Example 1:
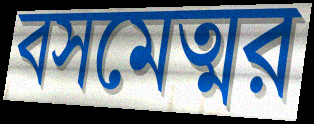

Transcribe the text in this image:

বসমেত্মর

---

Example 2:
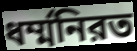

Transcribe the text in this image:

ধর্ম্মনিরত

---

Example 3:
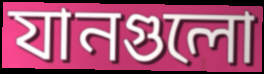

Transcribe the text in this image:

যানগুলো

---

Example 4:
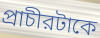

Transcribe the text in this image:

প্রাচীরটাকে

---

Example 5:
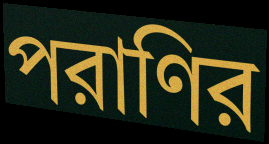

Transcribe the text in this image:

পরাণির